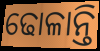
ଢୋଳାନ୍ତି